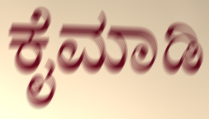
ಕೈಮಾಡಿ